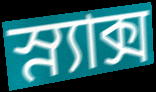
স্ন্যাক্স